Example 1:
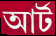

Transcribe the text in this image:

আর্ট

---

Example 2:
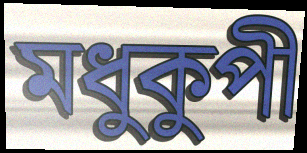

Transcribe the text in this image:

মধুকুপী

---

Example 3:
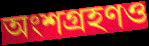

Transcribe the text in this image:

অংশগ্রহণও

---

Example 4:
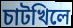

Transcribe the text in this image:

চাটখিলে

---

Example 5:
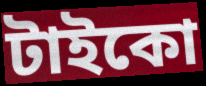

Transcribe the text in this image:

টাইকো